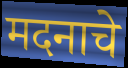
मदनाचे